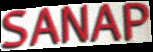
SANAP